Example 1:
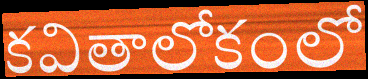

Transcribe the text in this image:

కవితాలోకంలో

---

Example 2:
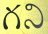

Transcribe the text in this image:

గని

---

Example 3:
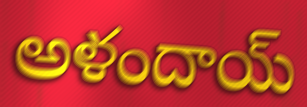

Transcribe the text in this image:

అళందాయ్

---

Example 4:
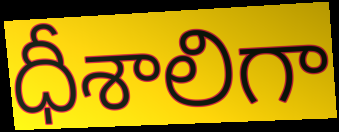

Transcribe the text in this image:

ధీశాలిగా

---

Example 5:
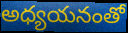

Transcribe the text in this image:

అధ్యయనంతో